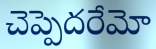
చెప్పెదరేమో